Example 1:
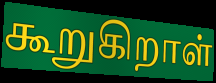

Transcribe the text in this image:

கூறுகிறாள்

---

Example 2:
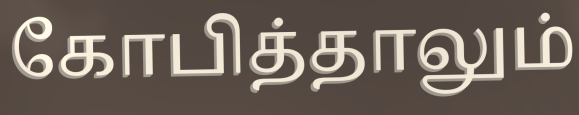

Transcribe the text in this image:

கோபித்தாலும்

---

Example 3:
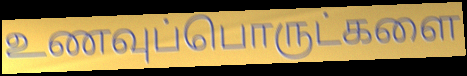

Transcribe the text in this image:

உணவுப்பொருட்களை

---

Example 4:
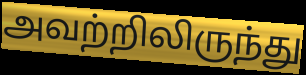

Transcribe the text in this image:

அவற்றிலிருந்து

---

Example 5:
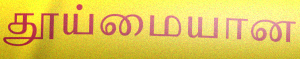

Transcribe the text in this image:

தூய்மையான